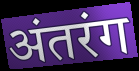
अंतरंग